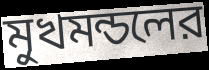
মুখমন্ডলের